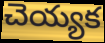
చెయ్యక